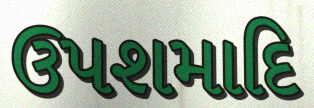
ઉપશમાદિ